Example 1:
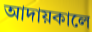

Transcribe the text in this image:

আদায়কালে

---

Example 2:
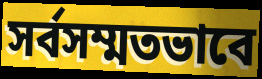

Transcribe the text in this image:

সর্বসম্মতভাবে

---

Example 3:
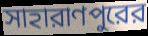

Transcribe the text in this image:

সাহারাণপুরের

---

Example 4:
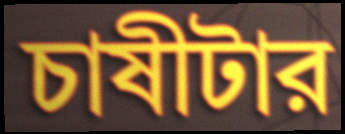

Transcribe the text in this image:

চাষীটার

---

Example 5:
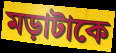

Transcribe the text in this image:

মড়াটাকে